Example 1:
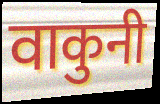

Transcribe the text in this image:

वाकुनी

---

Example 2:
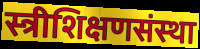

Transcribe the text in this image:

स्त्रीशिक्षणसंस्था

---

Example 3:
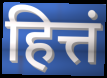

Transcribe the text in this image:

हित्तं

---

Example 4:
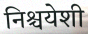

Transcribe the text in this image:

निश्चयेशी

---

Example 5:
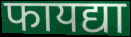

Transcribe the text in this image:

फायद्या